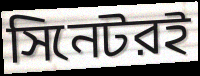
সিনেটরই